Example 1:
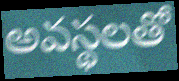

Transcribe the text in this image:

అవస్థలతో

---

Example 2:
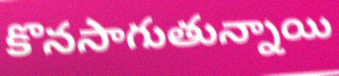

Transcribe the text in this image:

కొనసాగుతున్నాయి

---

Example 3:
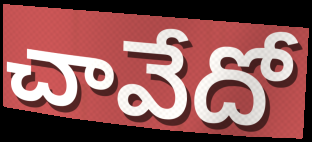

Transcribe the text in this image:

చావేదో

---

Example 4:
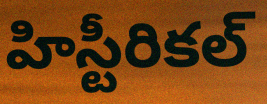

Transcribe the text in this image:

హిస్టీరికల్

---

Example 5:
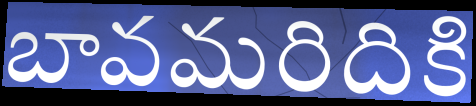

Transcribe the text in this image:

బావమరిదికి